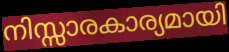
നിസ്സാരകാര്യമായി